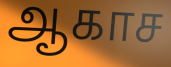
ஆகாச